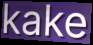
kake